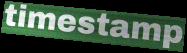
timestamp